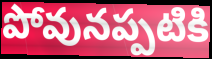
పోవునప్పటికి